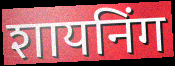
शायनिंग